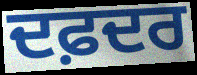
ਦਫ਼ਦਰ